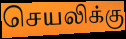
செயலிக்கு